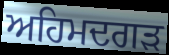
ਅਹਿਮਦਗੜ